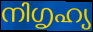
നിഗൃഹ്യ